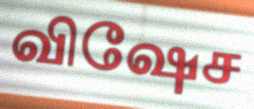
விஷேச